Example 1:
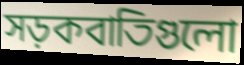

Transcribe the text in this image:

সড়কবাতিগুলো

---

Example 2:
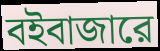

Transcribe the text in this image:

বইবাজারে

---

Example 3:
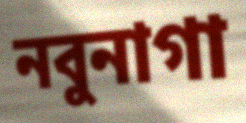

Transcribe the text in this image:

নবুনাগা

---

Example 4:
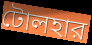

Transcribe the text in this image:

টোলহার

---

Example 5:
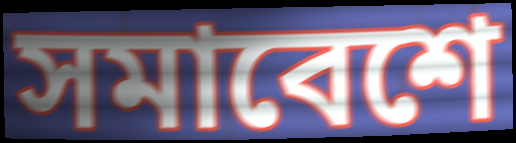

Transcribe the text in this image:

সমাবেশে